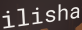
ilisha